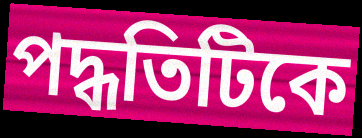
পদ্ধতিটিকে